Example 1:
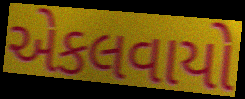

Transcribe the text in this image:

એકલવાયો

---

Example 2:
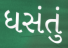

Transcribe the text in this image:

ધસંતું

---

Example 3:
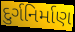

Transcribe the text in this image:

દુર્ગનિર્માણ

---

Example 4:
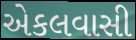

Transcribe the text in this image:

એકલવાસી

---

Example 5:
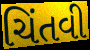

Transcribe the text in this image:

ચિંતવી